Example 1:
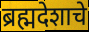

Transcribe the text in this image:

ब्रह्मदेशाचे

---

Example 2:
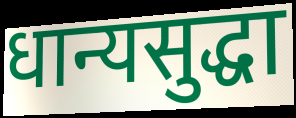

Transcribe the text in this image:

धान्यसुद्धा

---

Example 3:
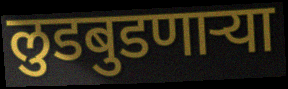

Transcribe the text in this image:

लुडबुडणाऱ्या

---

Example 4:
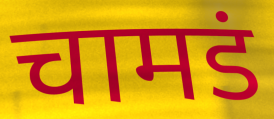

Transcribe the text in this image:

चामडं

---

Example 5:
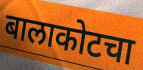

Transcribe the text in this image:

बालाकोटचा